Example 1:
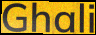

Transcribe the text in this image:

Ghali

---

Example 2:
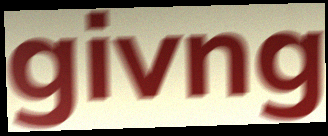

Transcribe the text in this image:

givng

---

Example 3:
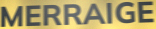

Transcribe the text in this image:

MERRAIGE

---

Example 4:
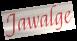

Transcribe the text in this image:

Jawalge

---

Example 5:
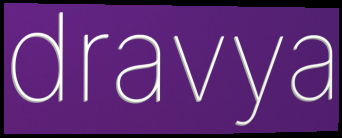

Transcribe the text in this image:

dravya